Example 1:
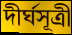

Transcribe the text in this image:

দীর্ঘসূত্রী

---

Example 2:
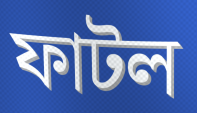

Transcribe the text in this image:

ফাটল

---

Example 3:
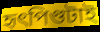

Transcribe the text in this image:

হৃৎপিণ্ডটাই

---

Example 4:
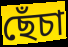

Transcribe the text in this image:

ছেঁচা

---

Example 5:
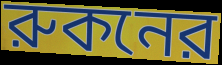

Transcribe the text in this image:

রুকনের